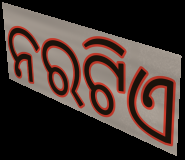
ନରଟିଏ